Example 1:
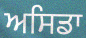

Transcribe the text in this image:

ਅਸਿਡਾ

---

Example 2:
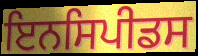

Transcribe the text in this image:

ਇਨਸਿਪੀਡਸ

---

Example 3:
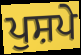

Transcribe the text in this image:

ਪੁਸ਼ਪੇ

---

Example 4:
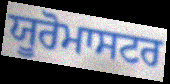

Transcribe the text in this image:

ਯੂਰੋਮਾਸਟਰ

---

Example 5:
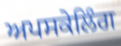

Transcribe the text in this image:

ਅਪਸਕੇਲਿੰਗ